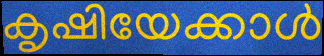
കൃഷിയേക്കാൾ